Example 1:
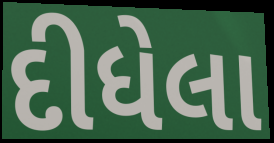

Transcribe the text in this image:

દીધેલા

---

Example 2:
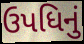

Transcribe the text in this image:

ઉપધિનું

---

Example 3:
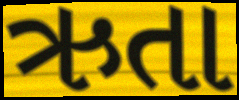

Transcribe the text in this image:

ઋતા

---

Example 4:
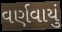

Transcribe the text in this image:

વર્ણવાયું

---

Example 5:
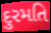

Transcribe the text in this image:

દુરમતિ